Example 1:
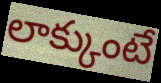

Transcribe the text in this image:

లాక్కుంటే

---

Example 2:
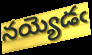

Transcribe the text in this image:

నయ్యెడఁ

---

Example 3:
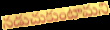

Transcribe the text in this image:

నడుచుకుంటామని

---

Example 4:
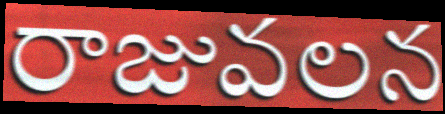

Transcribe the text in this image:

రాజువలన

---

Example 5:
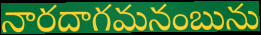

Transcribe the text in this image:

నారదాగమనంబును